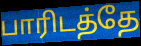
பாரிடத்தே